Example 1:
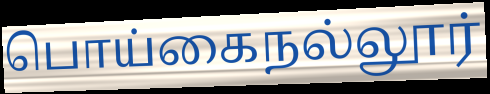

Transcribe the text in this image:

பொய்கைநல்லூர்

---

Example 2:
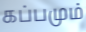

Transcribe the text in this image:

கப்பமும்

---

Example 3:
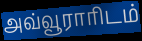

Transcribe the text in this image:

அவ்வூராரிடம்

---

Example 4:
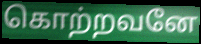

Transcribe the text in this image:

கொற்றவனே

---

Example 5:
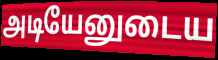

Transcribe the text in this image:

அடியேனுடைய